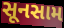
સૂનસામ